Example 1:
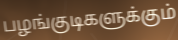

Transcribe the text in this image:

பழங்குடிகளுக்கும்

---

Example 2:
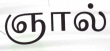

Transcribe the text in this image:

ஞால்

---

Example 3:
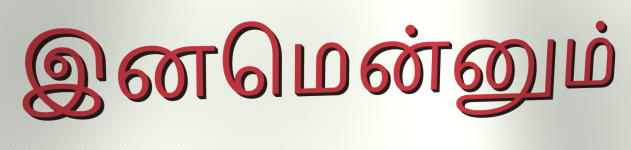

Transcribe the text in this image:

இனமென்னும்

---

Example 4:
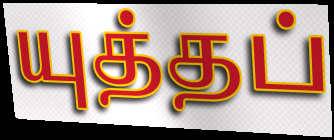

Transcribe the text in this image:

யுத்தப்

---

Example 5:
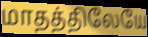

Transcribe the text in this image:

மாதத்திலேயே